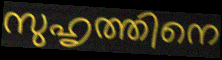
സുഹൃത്തിനെ